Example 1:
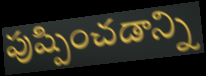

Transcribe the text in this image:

పుష్పించడాన్ని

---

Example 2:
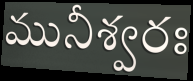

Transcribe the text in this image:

మునీశ్వరః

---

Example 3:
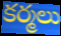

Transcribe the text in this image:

కర్మలు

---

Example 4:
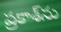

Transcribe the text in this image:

ప్రకాశ్‌ను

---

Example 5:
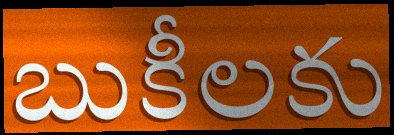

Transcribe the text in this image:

బుకీలకు